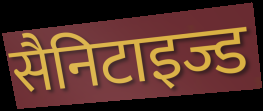
सैनिटाइज्ड